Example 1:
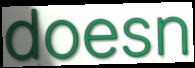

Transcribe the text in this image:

doesn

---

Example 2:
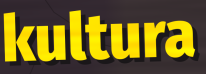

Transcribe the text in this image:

kultura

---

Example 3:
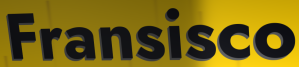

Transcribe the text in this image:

Fransisco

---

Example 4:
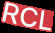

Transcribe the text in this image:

RCL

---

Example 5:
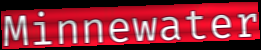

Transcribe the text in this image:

Minnewater